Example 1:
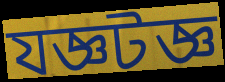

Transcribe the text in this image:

যজ্ঞটজ্ঞ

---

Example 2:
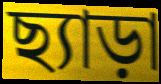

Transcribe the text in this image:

ছ্যাড়া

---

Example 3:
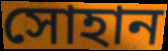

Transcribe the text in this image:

সোহান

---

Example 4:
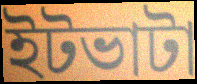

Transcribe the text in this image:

ইটভাটা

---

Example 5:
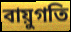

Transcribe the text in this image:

বায়ুগতি